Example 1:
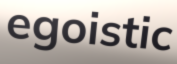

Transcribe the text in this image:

egoistic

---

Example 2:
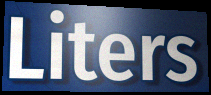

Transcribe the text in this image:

Liters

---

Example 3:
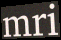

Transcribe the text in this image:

mri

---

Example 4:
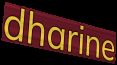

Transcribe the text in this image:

dharine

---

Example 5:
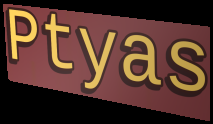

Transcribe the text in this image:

Ptyas